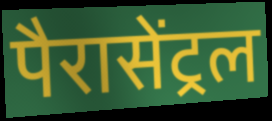
पैरासेंट्रल